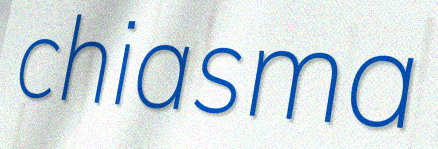
chiasma